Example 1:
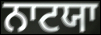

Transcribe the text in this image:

ਨਾਟਯਾ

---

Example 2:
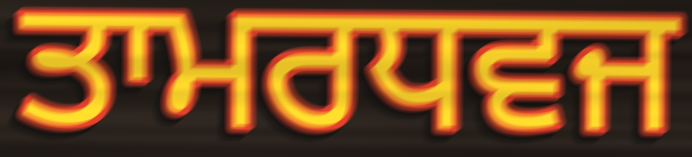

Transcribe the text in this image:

ਤਾਮਰਧਵਜ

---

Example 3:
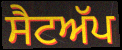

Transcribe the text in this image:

ਸੈਟਅੱਪ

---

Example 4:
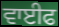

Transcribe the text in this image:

ਵਾਈਫ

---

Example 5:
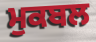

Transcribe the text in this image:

ਮੁਕਬਲ